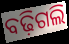
ବଢ଼ିଗଲି